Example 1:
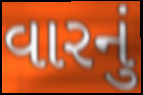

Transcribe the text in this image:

વારનું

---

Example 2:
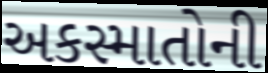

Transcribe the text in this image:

અકસ્માતોની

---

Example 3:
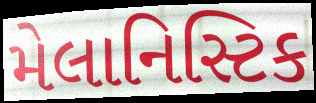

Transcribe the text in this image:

મેલાનિસ્ટિક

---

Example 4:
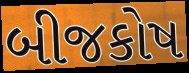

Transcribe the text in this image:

બીજકોષ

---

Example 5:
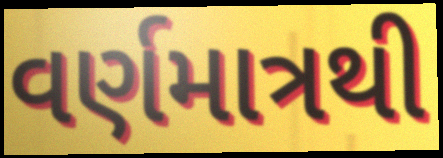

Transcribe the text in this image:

વર્ણમાત્રથી